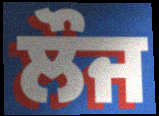
ਲੌਜ